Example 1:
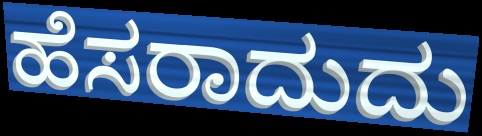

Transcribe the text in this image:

ಹೆಸರಾದುದು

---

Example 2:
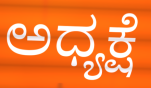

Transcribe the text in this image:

ಅಧ್ಯಕ್ಷೆ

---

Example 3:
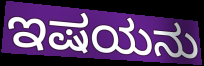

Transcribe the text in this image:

ಇಷಯನು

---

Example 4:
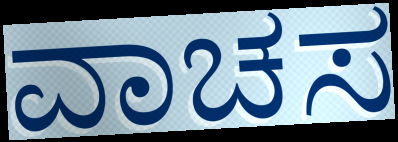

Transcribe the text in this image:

ವಾಚಸ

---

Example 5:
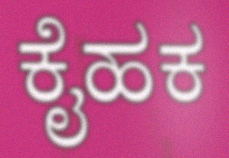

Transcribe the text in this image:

ಕೈಹಕ